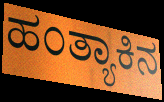
ಹಂತ್ಯಾಕಿನ